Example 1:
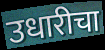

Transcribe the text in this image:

उधारीचा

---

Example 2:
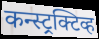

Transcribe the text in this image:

कन्स्ट्रक्टिव्ह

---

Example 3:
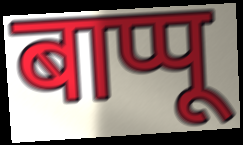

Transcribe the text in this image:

बाप्पू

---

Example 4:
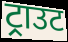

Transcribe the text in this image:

ट्राउट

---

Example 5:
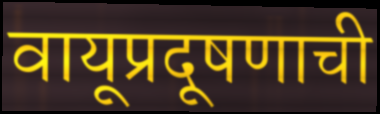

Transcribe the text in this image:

वायूप्रदूषणाची